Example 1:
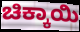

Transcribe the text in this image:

ಚಿಕ್ಕಾಯಿ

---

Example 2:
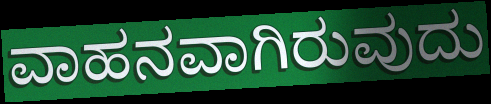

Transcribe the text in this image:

ವಾಹನವಾಗಿರುವುದು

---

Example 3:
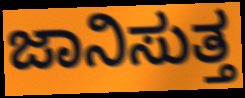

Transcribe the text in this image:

ಜಾನಿಸುತ್ತ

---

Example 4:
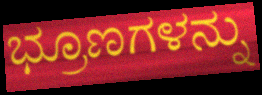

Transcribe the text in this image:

ಭ್ರೂಣಗಳನ್ನು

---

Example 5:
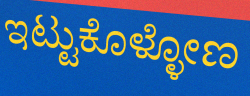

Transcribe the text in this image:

ಇಟ್ಟುಕೊಳ್ಳೋಣ